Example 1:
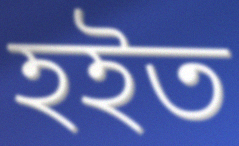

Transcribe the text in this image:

হইত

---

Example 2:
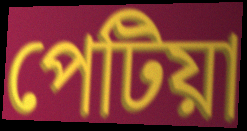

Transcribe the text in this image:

পেটিয়া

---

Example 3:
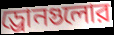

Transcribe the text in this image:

ড্রোনগুলোর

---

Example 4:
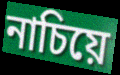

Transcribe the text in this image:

নাচিয়ে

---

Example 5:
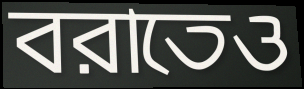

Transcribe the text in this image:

বরাতেও